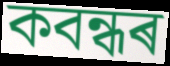
কবন্ধৰ